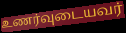
உணர்வுடையவர்